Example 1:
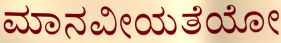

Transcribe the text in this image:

ಮಾನವೀಯತೆಯೋ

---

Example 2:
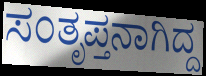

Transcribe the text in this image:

ಸಂತೃಪ್ತನಾಗಿದ್ದ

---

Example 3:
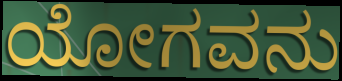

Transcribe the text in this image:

ಯೋಗವನು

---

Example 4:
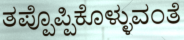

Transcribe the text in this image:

ತಪ್ಪೊಪ್ಪಿಕೊಳ್ಳುವಂತೆ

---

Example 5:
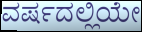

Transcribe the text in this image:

ವರ್ಷದಲ್ಲಿಯೇ